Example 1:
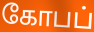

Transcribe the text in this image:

கோபப்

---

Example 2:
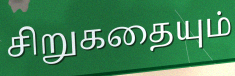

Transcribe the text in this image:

சிறுகதையும்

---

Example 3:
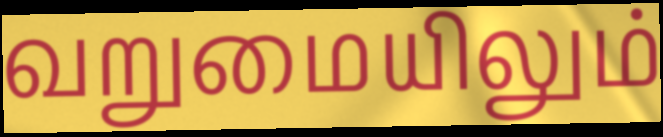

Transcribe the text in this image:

வறுமையிலும்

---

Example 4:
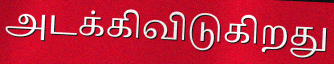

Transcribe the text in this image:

அடக்கிவிடுகிறது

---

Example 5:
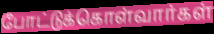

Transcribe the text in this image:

போட்டுக்கொள்வார்கள்